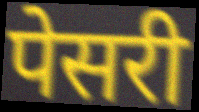
पेसरी